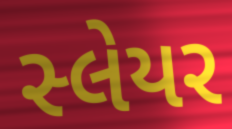
સ્લેયર